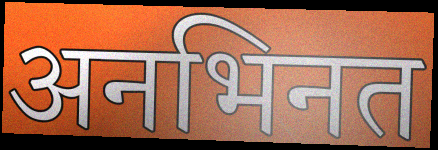
अनभिनत